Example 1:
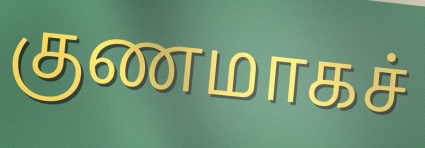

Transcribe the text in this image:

குணமாகச்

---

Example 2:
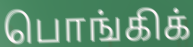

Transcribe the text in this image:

பொங்கிக்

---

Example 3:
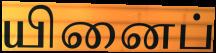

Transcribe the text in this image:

யினைப்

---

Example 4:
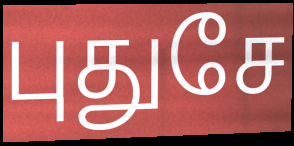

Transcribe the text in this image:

புதுசே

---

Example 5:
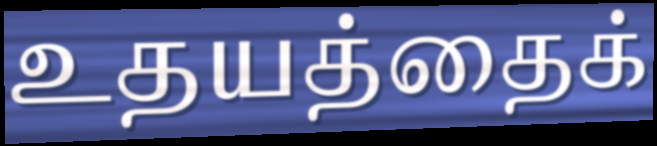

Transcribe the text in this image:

உதயத்தைக்